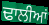
ਢਾਲੀਆਂ